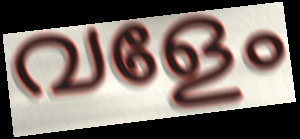
വളേം